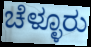
ಚೆಳ್ಳೂರು